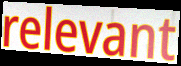
relevant